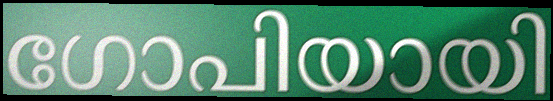
ഗോപിയായി